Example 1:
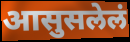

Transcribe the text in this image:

आसुसलेलं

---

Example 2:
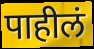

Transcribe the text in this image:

पाहीलं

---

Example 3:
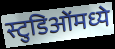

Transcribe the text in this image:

स्टुडिओंमध्ये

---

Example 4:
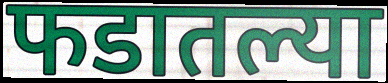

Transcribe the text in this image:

फडातल्या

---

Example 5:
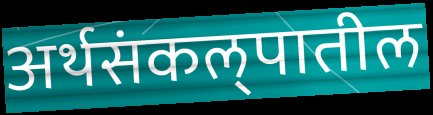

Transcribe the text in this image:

अर्थसंकल्पातील